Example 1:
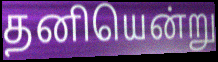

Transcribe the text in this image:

தனியென்று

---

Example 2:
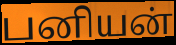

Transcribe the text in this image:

பனியன்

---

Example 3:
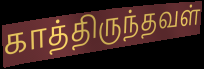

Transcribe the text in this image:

காத்திருந்தவள்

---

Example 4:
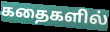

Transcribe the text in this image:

கதைகளில்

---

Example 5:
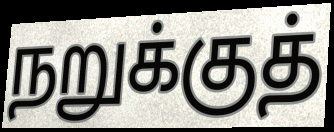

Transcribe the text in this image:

நறுக்குத்